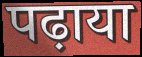
पढ़ाया